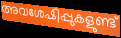
അവശേഷിപ്പുകളുണ്ട്